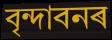
বৃন্দাবনৰ